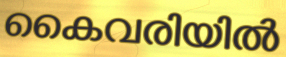
കൈവരിയിൽ